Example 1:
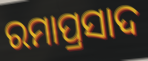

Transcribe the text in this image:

ରମାପ୍ରସାଦ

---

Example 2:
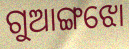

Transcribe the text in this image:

ଗୁଆଙ୍ଗଝୋ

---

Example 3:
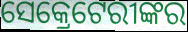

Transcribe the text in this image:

ସେକ୍ରେଟେରୀଙ୍କର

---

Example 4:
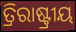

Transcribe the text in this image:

ତ୍ରିରାଷ୍ଟ୍ରୀୟ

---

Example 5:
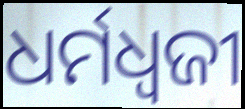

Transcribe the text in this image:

ଧର୍ମଧ୍ୱଜୀ